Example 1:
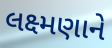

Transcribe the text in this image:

લક્ષ્મણાને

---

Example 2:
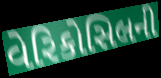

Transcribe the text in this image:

વેરિકોસિલની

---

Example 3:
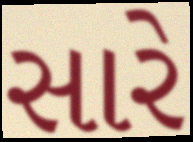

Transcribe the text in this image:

સારે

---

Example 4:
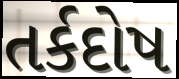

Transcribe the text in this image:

તર્કદોષ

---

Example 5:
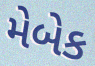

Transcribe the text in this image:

મેબેક